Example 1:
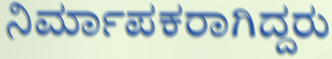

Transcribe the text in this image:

ನಿರ್ಮಾಪಕರಾಗಿದ್ದರು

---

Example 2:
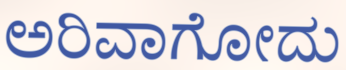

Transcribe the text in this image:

ಅರಿವಾಗೋದು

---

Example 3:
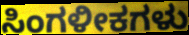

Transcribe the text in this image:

ಸಿಂಗಳೀಕಗಳು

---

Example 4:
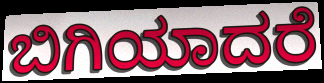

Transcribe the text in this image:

ಬಿಗಿಯಾದರೆ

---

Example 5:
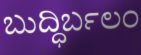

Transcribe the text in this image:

ಬುದ್ಧಿರ್ಬಲಂ